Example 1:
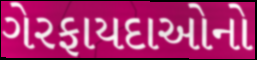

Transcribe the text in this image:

ગેરફાયદાઓનો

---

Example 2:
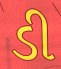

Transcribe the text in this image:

ડી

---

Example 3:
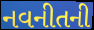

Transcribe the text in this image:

નવનીતની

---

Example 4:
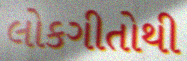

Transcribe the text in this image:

લોકગીતોથી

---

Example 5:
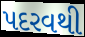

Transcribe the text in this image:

પદરવથી